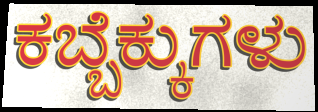
ಕಬ್ಬೆಕ್ಕುಗಳು